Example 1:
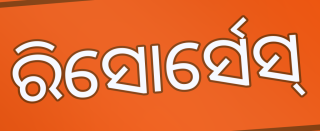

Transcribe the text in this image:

ରିସୋର୍ସେସ୍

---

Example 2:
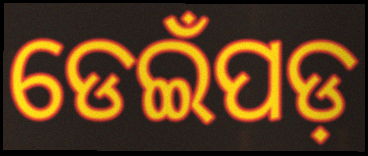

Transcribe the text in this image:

ଡେଇଁପଡ଼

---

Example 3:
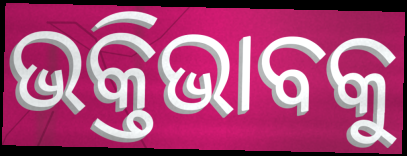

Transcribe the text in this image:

ଭକ୍ତିଭାବକୁ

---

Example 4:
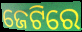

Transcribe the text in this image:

ଜେଟିରେ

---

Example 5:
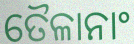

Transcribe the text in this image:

ତୈଳାନାଂ